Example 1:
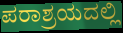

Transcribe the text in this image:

ಪರಾಶ್ರಯದಲ್ಲಿ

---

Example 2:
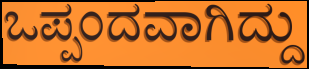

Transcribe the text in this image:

ಒಪ್ಪಂದವಾಗಿದ್ದು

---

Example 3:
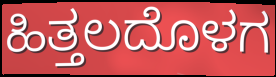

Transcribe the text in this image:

ಹಿತ್ತಲದೊಳಗ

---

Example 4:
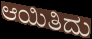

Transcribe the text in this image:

ಆಯಿತಿದು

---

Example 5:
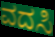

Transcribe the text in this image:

ವದಸಿ